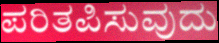
ಪರಿತಪಿಸುವುದು